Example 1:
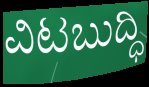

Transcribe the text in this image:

ವಿಟಬುದ್ಧಿ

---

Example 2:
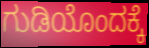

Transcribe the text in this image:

ಗುಡಿಯೊಂದಕ್ಕೆ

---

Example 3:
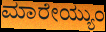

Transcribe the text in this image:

ಮಾರೇಯ್ಯುಂ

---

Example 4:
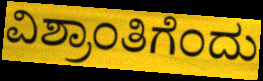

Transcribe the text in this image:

ವಿಶ್ರಾಂತಿಗೆಂದು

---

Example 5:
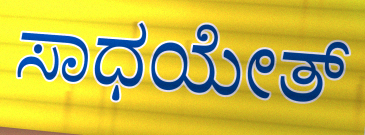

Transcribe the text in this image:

ಸಾಧಯೇತ್